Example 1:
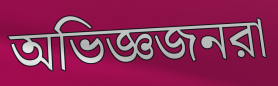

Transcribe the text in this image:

অভিজ্ঞজনরা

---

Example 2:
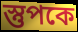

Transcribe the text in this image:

স্তুপকে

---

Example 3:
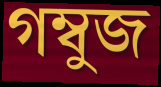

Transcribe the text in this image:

গম্বুজ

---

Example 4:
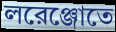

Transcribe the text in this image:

লরেঞ্জোতে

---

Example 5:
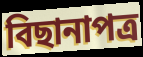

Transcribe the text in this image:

বিছানাপত্র